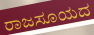
ರಾಜಸೂಯದ